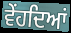
ਵੇਂਹਦਿਆਂ